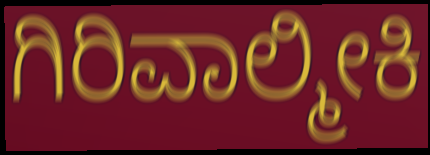
ಗಿರಿವಾಲ್ಮೀಕಿ